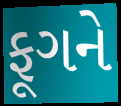
ફૂગને